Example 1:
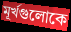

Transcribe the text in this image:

মূর্খগুলোকে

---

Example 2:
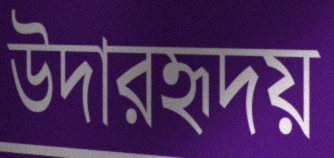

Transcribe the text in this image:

উদারহৃদয়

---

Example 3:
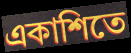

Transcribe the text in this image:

একাশিতে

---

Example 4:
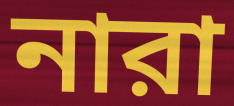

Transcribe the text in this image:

নারা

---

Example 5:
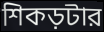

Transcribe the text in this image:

শিকড়টার